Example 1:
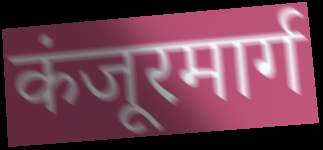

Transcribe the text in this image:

कंजूरमार्ग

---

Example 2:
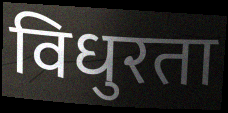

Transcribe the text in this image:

विधुरता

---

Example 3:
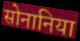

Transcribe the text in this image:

सोनानिया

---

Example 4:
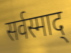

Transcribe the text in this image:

सर्वस्माद्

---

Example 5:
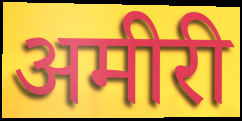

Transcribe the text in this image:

अमीरी